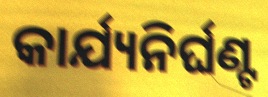
କାର୍ଯ୍ୟନିର୍ଘଣ୍ଟ